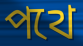
পথে